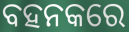
ବହନକରେ